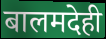
बालमदेही